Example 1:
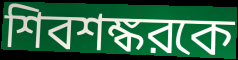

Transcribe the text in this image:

শিবশঙ্করকে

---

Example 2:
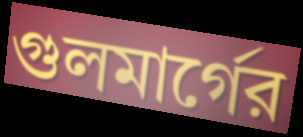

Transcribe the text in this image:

গুলমার্গের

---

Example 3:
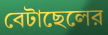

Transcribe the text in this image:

বেটাছেলের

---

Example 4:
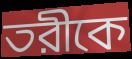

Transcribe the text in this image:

তরীকে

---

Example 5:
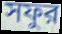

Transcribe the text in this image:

সফুর